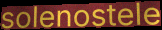
solenostele